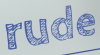
rude